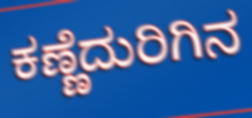
ಕಣ್ಣೆದುರಿಗಿನ